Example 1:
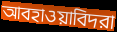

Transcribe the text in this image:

আবহাওয়াবিদরা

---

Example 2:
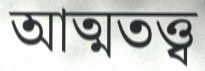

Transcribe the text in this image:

আত্মতত্ত্ব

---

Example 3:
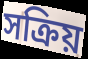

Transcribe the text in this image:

সক্রিয়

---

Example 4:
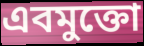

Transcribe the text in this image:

এবমুক্তো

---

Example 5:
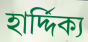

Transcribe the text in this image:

হার্দ্দিক্য